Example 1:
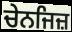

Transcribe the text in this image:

ਚੇਨਜਿਜ਼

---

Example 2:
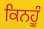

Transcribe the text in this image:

ਕਿਨਹੂੰ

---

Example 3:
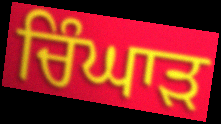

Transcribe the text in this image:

ਚਿੰਘਾੜ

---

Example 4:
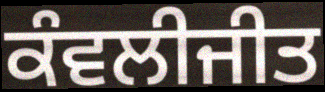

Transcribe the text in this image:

ਕੰਵਲੀਜੀਤ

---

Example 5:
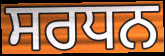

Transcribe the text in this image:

ਸਰਧਨ